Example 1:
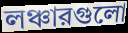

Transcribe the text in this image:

লঞ্চারগুলো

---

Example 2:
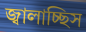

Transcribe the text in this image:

জ্বালাচ্ছিস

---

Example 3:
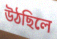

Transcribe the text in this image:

উঠছিলে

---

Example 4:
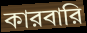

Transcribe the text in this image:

কারবারি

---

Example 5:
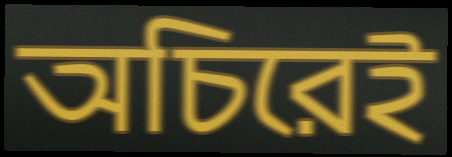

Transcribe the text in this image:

অচিরেই